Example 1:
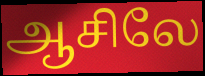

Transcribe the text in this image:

ஆசிலே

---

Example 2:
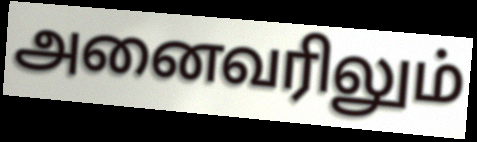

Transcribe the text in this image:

அனைவரிலும்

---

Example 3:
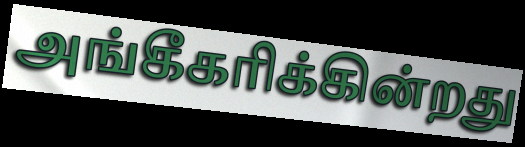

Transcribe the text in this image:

அங்கீகரிக்கின்றது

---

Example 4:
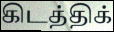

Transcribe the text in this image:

கிடத்திக்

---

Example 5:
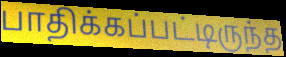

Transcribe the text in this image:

பாதிக்கப்பட்டிருந்த